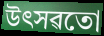
উৎসৱতো